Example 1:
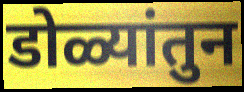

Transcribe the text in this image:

डोळ्यांतुन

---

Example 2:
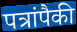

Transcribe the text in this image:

पत्रांपैकी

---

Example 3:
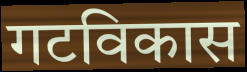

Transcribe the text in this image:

गटविकास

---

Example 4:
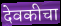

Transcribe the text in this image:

देवकीचा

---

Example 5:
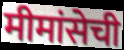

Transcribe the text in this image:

मीमांसेची